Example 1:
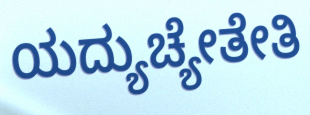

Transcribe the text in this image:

ಯದ್ಯುಚ್ಯೇತೇತಿ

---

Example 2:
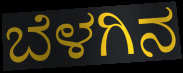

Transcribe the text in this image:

ಬೆಳಗಿನ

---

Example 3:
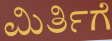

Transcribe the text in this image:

ಮಿರ್ತಿಗೆ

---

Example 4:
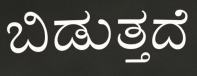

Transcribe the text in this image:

ಬಿಡುತ್ತದೆ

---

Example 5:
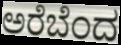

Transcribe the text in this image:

ಅರೆಬೆಂದ